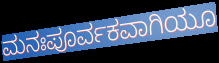
ಮನಃಪೂರ್ವಕವಾಗಿಯೂ